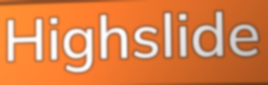
Highslide